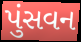
પુંસવન